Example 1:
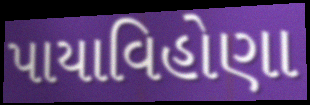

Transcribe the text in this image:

પાયાવિહોણા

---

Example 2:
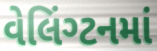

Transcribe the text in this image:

વેલિંગ્ટનમાં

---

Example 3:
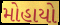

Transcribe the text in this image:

મોહાયો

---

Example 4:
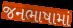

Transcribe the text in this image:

જનભાષામાં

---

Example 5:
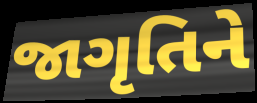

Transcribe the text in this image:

જાગૃતિને